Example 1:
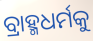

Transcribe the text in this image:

ବ୍ରାହ୍ମଧର୍ମକୁ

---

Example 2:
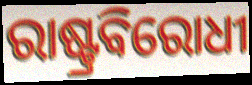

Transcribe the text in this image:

ରାଷ୍ଟ୍ରବିରୋଧୀ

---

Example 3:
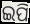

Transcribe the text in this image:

ଇପି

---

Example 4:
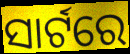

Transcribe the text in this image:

ସାର୍ଟରେ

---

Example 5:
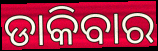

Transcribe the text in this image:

ଡାକିବାର